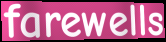
farewells